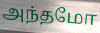
அந்தமோ